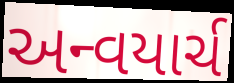
અન્વયાર્ચ